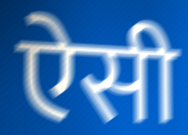
ऐसी